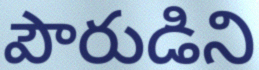
పౌరుడిని